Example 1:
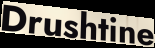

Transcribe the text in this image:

Drushtine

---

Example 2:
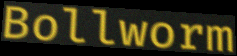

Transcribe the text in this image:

Bollworm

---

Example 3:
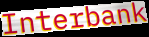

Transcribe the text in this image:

Interbank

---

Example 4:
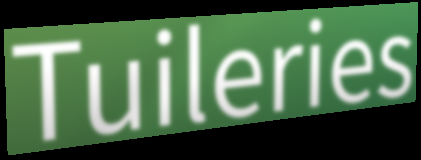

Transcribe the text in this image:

Tuileries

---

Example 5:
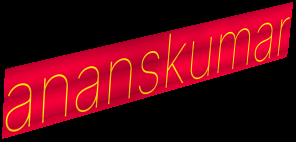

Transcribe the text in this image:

ananskumar